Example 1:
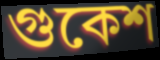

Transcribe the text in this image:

গুকেশ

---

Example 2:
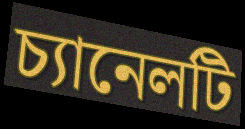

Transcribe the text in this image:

চ্যানেলটি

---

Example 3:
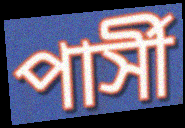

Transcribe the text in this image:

পার্সী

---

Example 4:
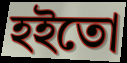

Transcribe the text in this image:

হইতো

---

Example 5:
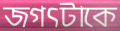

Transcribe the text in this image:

জগৎটাকে